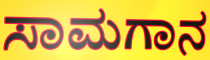
ಸಾಮಗಾನ